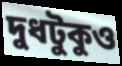
দুধটুকুও